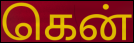
கென்